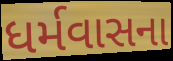
ધર્મવાસના